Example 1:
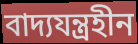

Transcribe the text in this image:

বাদ্যযন্ত্ৰহীন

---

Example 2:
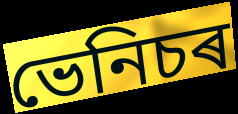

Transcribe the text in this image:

ভেনিচৰ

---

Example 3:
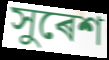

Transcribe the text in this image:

সুৰেশ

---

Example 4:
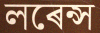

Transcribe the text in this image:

লৰেন্স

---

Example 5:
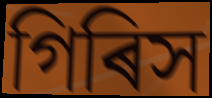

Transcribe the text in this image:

গিৰিস